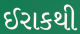
ઈરાકથી